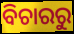
ବିଚାରରୁ